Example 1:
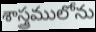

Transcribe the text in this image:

శాస్త్రములోను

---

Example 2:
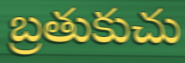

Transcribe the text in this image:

బ్రతుకుచు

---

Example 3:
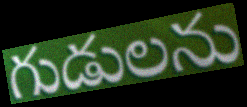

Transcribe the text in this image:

గుడులను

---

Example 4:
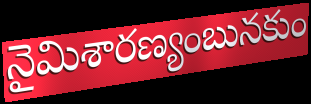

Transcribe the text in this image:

నైమిశారణ్యంబునకుం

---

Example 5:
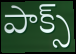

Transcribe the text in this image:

పాక్స్